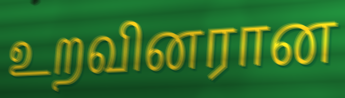
உறவினரான